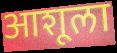
आशूला